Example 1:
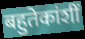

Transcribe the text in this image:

बहुतेकांशीं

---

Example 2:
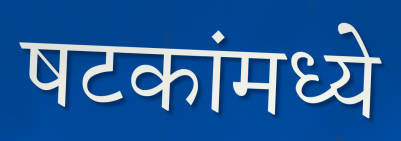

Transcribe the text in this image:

षटकांमध्ये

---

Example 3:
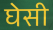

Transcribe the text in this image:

घेसी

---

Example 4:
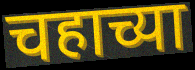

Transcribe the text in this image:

चहाच्या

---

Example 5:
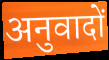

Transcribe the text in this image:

अनुवादों